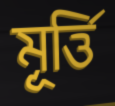
মূর্ত্তি